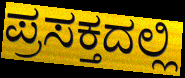
ಪ್ರಸಕ್ತದಲ್ಲಿ